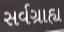
સર્વગ્રાહ્ય